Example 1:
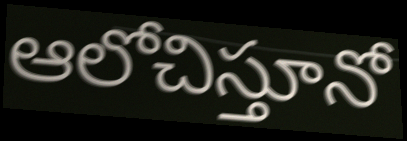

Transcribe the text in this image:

ఆలోచిస్తూనో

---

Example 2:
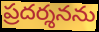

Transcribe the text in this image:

ప్రదర్శనను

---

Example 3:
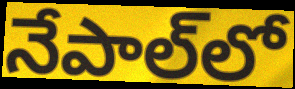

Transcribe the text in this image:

నేపాల్‌లో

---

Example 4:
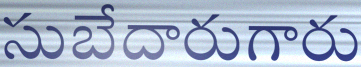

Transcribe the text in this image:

సుబేదారుగారు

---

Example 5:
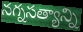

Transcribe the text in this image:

నగ్నసత్యాన్ని